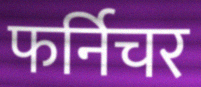
फर्निचर